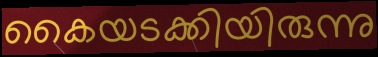
കൈയടക്കിയിരുന്നു